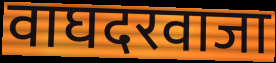
वाघदरवाजा